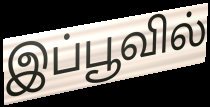
இப்பூவில்